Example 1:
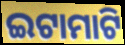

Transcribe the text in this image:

ଇଟାମାଟି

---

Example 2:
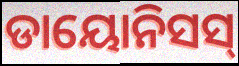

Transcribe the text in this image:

ଡାୟୋନିସସ୍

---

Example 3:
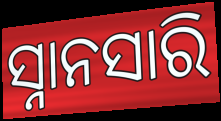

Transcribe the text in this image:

ସ୍ନାନସାରି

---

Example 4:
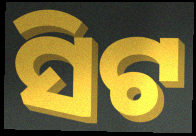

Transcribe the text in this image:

ସିଟ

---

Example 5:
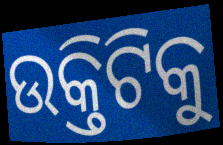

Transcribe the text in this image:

ଉକ୍ତିଟିକୁ